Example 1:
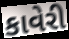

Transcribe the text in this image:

કાવેરી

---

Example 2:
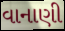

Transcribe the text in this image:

વાનાણી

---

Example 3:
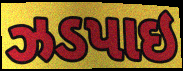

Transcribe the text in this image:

ઝડપાઇ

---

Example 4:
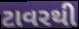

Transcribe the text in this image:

ટાવરથી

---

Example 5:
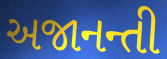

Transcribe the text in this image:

અજાનન્તી